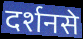
दर्शनसे